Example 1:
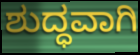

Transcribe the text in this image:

ಶುದ್ಧವಾಗಿ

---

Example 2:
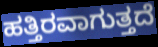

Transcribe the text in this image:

ಹತ್ತಿರವಾಗುತ್ತದೆ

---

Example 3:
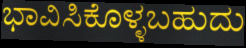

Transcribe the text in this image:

ಭಾವಿಸಿಕೊಳ್ಳಬಹುದು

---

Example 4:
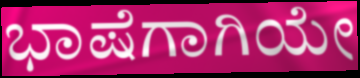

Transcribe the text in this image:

ಭಾಷೆಗಾಗಿಯೇ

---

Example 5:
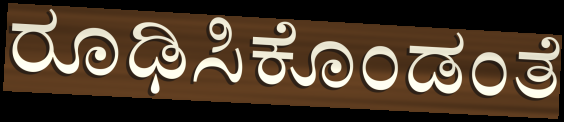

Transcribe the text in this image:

ರೂಢಿಸಿಕೊಂಡಂತೆ